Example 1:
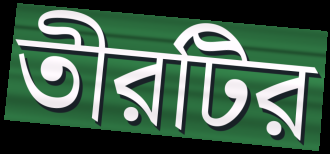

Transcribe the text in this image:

তীরটির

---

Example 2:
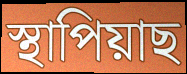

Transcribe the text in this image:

স্থাপিয়াছ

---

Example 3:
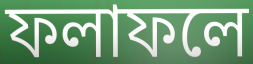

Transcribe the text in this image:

ফলাফলে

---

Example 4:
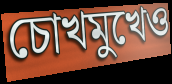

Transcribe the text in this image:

চোখমুখেও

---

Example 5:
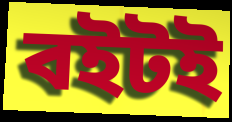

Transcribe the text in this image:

বইটই